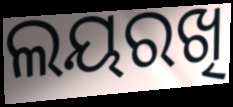
ଲୟରଖି